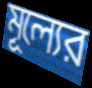
মূল্যের